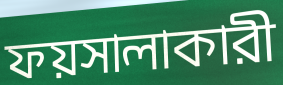
ফয়সালাকারী